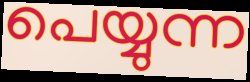
പെയ്യുന്ന